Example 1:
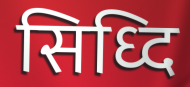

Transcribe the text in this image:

सिध्दि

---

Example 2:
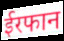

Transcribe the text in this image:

ईरफान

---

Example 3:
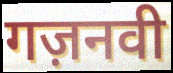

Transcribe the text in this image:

गज़नवी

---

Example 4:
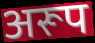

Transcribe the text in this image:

अरूप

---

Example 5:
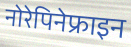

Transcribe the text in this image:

नोरेपिनेफ्राइन